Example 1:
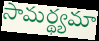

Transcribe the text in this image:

సామర్థ్యమా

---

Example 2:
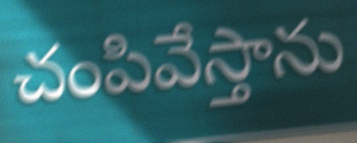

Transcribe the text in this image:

చంపివేస్తాను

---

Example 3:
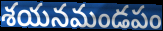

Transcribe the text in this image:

శయనమండపం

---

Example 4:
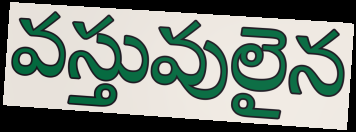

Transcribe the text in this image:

వస్తువులైన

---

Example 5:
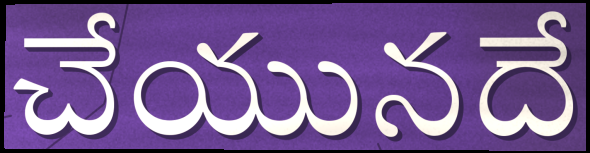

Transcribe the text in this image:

చేయునదే